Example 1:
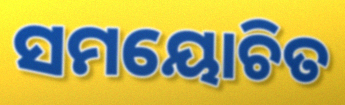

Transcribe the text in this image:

ସମୟୋଚିତ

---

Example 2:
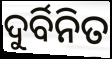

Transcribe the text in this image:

ଦୁର୍ବିନିତ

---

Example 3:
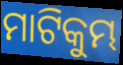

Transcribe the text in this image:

ମାଟିକୁମ୍ଭ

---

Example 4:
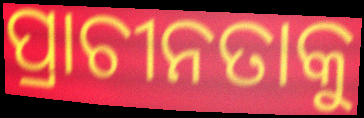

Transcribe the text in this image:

ପ୍ରାଚୀନତାକୁ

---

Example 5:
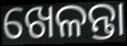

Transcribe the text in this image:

ଖେଳନ୍ତା